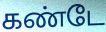
கண்டே